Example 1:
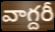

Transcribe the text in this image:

వాగ్దరీ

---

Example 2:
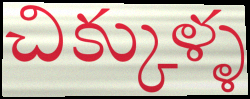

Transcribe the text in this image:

చిక్కుళ్ళ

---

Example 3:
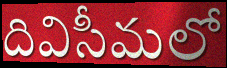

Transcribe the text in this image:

దివిసీమలో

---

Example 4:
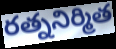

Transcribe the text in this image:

రత్ననిర్మిత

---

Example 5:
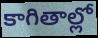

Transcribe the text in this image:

కాగితాల్లో